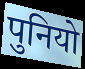
पुनियो